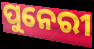
ପୁନେରୀ